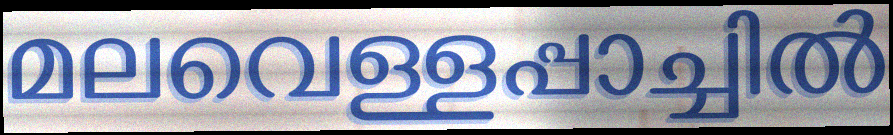
മലവെള്ളപ്പാച്ചിൽ